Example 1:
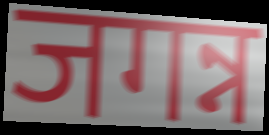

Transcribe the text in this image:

जगन्न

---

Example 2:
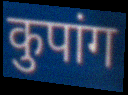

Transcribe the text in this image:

कुपांग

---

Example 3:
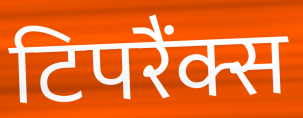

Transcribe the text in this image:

टिपरैंक्स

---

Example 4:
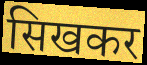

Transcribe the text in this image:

सिखकर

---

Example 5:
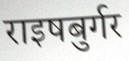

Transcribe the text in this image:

राइषबुर्गर